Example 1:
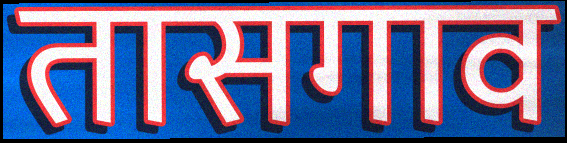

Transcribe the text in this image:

तासगाव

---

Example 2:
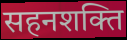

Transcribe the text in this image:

सहनशक्ति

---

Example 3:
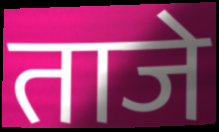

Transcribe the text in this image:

ताजे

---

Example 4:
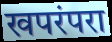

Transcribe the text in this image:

खपरंपरा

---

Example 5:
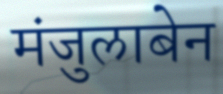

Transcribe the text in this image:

मंजुलाबेन